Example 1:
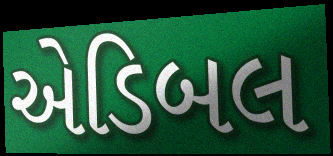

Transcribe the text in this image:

એડિબલ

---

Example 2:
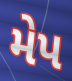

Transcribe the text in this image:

મેપ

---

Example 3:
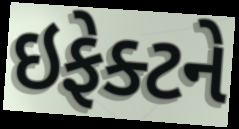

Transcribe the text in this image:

ઇફેક્ટને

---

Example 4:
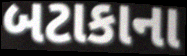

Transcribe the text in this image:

બટાકાના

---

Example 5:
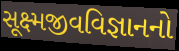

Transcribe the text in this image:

સૂક્ષ્મજીવવિજ્ઞાનનો